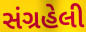
સંગ્રહેલી